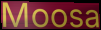
Moosa